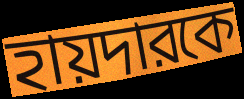
হায়দারকে